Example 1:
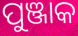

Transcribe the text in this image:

ପୁଞ୍ଜାକ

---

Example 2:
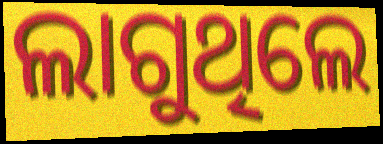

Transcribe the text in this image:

ଲାଗୁଥିଲେ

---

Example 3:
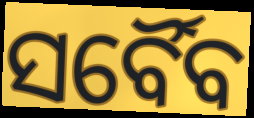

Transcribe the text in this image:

ସର୍ବୈବ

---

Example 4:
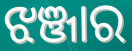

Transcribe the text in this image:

ଝଞ୍ଜାର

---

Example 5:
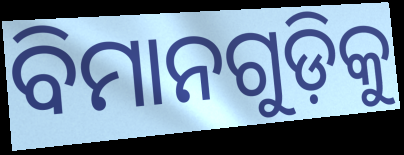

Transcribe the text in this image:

ବିମାନଗୁଡ଼ିକୁ